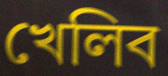
খেলিব